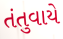
તંતુવાયે